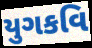
યુગકવિ